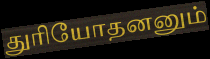
துரியோதனனும்